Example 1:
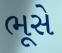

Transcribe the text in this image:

ભૂસે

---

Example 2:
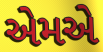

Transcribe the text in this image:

એમએ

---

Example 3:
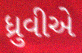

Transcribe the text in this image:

ધ્રુવીએ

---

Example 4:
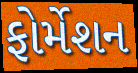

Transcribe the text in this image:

ફોર્મેશન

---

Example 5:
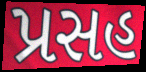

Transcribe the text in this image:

પ્રસહ